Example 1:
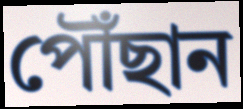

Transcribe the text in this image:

পৌঁছান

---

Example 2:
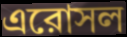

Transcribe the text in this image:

এরোসল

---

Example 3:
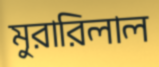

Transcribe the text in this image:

মুরারিলাল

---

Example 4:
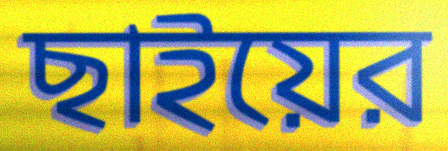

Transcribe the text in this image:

ছাইয়ের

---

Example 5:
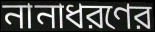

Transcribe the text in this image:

নানাধরণের